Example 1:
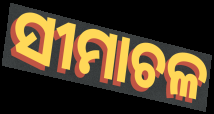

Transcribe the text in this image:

ସୀମାଚଳ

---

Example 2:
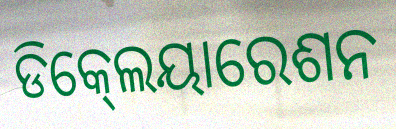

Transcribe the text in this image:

ଡିକ୍‍ଲେୟାରେଶନ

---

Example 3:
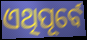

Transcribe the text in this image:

ଏଥିପୂର୍ବେ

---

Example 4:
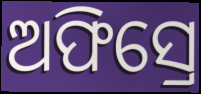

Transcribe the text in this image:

ଅଫିସ୍ରେ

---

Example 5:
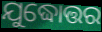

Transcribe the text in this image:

ଯୁଦ୍ଧୋତ୍ତର